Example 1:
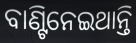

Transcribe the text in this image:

ବାଣ୍ଟିନେଇଥାନ୍ତି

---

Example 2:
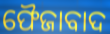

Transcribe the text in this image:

ଫୈଜାବାଦ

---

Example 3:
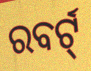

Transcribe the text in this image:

ରବର୍ଟ୍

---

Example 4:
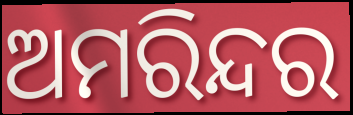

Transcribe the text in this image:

ଅମରିନ୍ଦର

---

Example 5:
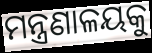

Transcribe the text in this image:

ମନ୍ତ୍ରଣାଳୟକୁ